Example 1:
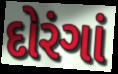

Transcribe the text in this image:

દોરંગાં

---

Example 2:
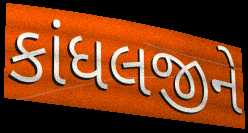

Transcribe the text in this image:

કાંધલજીને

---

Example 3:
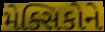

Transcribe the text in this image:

મેક્સિકોને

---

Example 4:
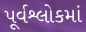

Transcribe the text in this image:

પૂર્વશ્લોકમાં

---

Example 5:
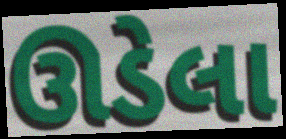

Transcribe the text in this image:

ઊડેલા